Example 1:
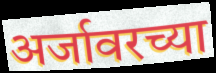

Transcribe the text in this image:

अर्जावरच्या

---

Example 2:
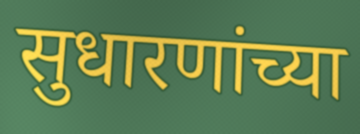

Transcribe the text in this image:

सुधारणांच्या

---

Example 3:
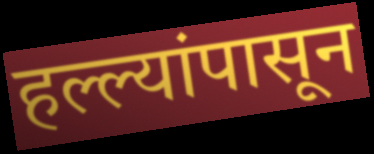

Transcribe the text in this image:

हल्ल्यांपासून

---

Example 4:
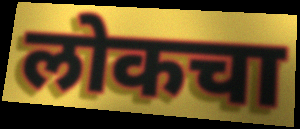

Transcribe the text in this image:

लोकचा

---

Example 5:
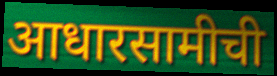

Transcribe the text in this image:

आधारसामीची